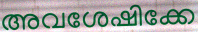
അവശേഷിക്കേ